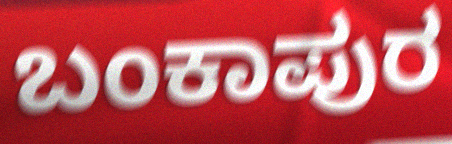
ಬಂಕಾಪುರ